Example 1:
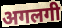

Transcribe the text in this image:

अगलगी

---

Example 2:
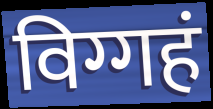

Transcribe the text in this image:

विग्गहं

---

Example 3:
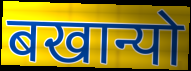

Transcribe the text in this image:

बखान्यो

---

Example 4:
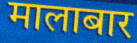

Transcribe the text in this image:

मालाबार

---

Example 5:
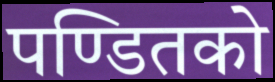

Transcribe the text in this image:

पण्डितको